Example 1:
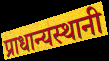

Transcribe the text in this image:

प्राधान्यस्थानी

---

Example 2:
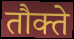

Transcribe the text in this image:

तौक्ते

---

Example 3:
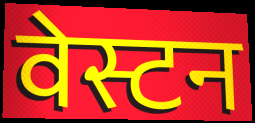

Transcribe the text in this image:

वेस्टन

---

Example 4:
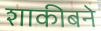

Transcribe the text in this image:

शाकीबने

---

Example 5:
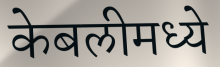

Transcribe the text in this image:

केबलीमध्ये